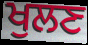
ਖੁਲਣ